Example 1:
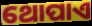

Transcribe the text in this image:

ଥୋପାଏ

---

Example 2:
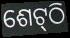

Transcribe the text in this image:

ଶେଟ୍‍ଠି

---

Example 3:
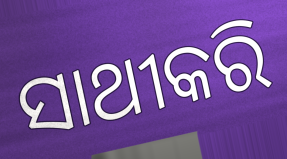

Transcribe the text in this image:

ସାଥୀକରି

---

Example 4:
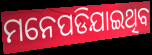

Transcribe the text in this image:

ମନେପଡିଯାଇଥିବ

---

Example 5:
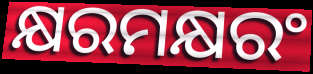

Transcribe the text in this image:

କ୍ଷରମକ୍ଷରଂ